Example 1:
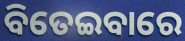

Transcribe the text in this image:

ବିତେଇବାରେ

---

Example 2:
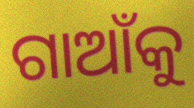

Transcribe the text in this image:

ଗାଆଁକୁ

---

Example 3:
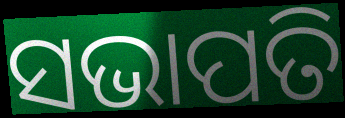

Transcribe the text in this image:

ସଭାପତି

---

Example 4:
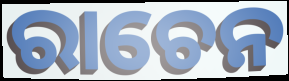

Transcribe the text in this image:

ରାଚେନ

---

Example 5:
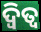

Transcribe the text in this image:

ଦ୍ୱିତ୍ୱ